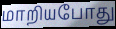
மாறியபோது